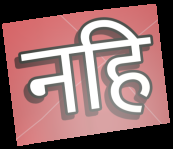
नहि